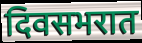
दिवसभरात